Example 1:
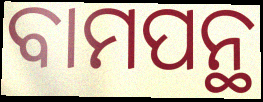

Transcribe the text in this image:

ବାମପନ୍ଥ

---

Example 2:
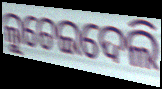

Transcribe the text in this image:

ଲୁଚେଇଦେଲି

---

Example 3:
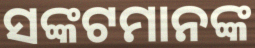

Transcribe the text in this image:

ସଙ୍କଟମାନଙ୍କ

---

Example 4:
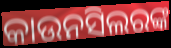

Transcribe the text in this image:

କାଉନସିଲରଙ୍କ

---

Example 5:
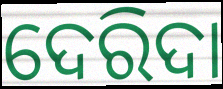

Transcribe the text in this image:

ଦେରିଦା